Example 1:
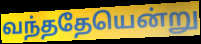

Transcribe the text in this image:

வந்ததேயென்று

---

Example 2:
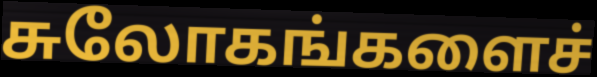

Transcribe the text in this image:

சுலோகங்களைச்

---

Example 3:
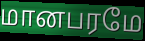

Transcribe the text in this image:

மானபரமே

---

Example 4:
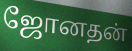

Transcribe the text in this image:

ஜோனதன்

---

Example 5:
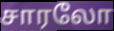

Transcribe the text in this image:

சாரலோ